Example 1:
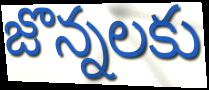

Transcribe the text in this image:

జొన్నలకు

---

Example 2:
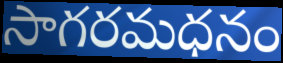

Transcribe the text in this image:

సాగరమధనం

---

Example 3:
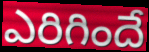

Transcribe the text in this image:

ఎరిగిందే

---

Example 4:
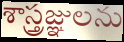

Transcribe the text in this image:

శాస్త్రజ్ఞులను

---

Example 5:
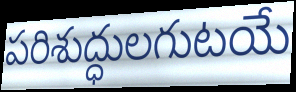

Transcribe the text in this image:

పరిశుద్ధులగుటయే